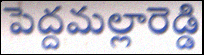
పెద్దమల్లారెడ్డి